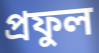
প্রফুল